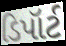
ડિપૉર્ટ